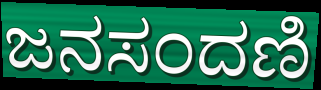
ಜನಸಂದಣಿ